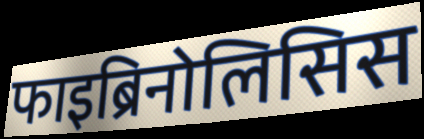
फाइब्रिनोलिसिस